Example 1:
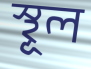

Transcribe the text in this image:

স্থূল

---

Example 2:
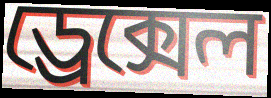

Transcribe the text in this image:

ড্রেক্সেল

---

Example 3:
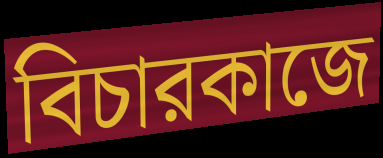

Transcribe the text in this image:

বিচারকাজে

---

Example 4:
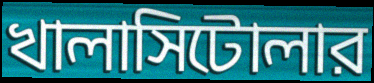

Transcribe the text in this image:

খালাসিটোলার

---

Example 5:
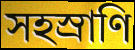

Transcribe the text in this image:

সহস্রাণি